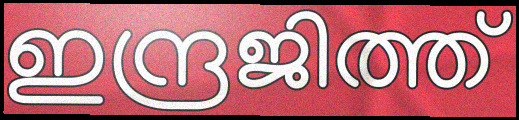
ഇന്ദ്രജിത്ത്